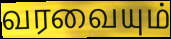
வரவையும்